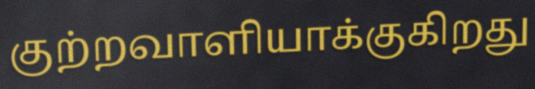
குற்றவாளியாக்குகிறது